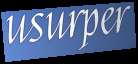
usurper